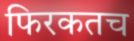
फिरकतच